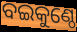
ବଇକୁଣ୍ଠେ